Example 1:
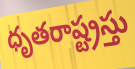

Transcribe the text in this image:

ధృతరాష్ట్రస్తు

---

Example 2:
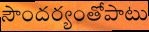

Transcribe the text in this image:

సౌందర్యంతోపాటు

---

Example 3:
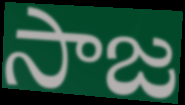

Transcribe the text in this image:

సాజ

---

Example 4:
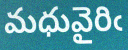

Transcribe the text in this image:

మధువైరిఁ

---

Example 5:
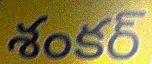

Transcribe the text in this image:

శంకర్